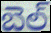
బెల్